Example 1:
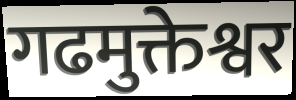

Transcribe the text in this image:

गढमुक्तेश्वर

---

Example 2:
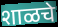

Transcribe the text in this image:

शाळचे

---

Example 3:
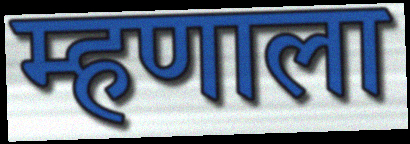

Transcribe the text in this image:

म्‍हणाला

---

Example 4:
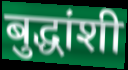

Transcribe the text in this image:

बुद्धांशी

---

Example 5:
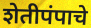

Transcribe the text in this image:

शेतीपंपाचे